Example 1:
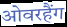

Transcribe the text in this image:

ओवरहैंग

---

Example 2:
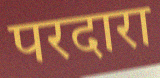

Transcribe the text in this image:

परदारा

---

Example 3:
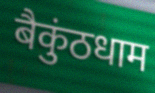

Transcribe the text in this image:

बैकुंठधाम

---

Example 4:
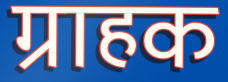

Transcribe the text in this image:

ग्राहक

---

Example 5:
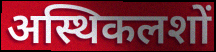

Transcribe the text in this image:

अस्थिकलशों